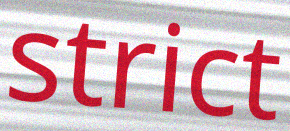
strict